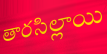
తారసిల్లాయి